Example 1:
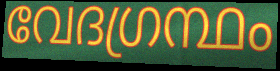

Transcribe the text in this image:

വേദഗ്രന്ഥം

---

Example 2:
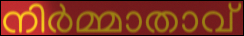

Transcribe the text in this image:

നിർമ്മാതാവ്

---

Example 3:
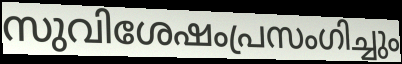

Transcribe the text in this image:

സുവിശേഷംപ്രസംഗിച്ചും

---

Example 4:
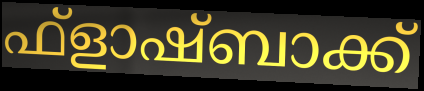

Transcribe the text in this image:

ഫ്ളാഷ്ബാക്ക്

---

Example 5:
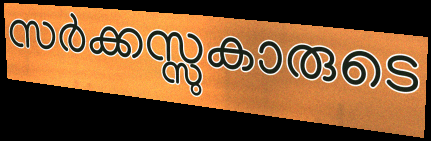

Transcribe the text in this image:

സർക്കസ്സുകാരുടെ